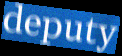
deputy